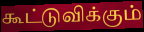
கூட்டுவிக்கும்